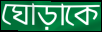
ঘোড়াকে